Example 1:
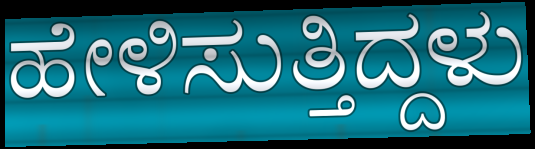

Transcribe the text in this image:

ಹೇಳಿಸುತ್ತಿದ್ದಳು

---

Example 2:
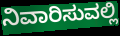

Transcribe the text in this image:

ನಿವಾರಿಸುವಲ್ಲಿ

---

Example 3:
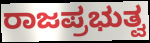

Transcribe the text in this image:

ರಾಜಪ್ರಭುತ್ವ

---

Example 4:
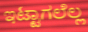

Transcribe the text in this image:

ಇಟ್ಟಾಗಲೆಲ್ಲ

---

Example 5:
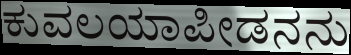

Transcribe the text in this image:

ಕುವಲಯಾಪೀಡನನು